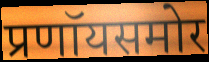
प्रणॉयसमोर